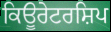
ਕਿਊਰੇਟਰਸ਼ਿਪ